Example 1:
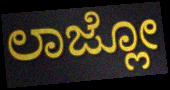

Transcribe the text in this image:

ಲಾಜ್ಲೋ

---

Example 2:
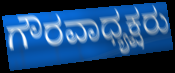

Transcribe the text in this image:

ಗೌರವಾಧ್ಯಕ್ಷರು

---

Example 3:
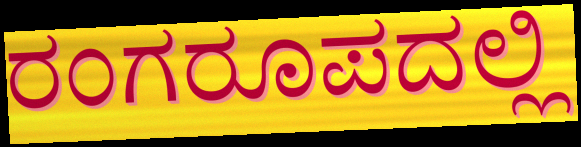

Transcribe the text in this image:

ರಂಗರೂಪದಲ್ಲಿ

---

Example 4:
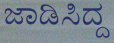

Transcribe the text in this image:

ಜಾಡಿಸಿದ್ದ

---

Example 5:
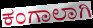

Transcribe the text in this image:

ಕಂಗಾಲಾಗಿ